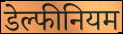
डेल्फीनियम